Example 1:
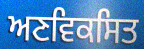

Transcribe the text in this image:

ਅਣਵਿਕਸਿਤ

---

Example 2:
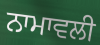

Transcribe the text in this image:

ਨਾਮਾਵਲੀ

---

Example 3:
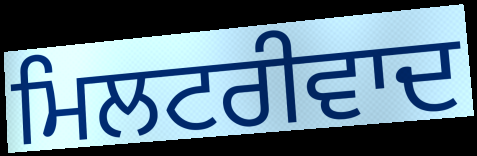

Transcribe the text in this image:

ਮਿਲਟਰੀਵਾਦ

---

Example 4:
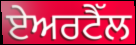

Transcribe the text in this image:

ਏਅਰਟੈੱਲ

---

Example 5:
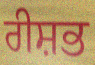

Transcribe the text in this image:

ਰੀਸ਼ਭ